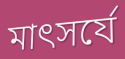
মাৎসর্যে